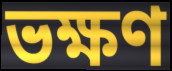
ভক্ষণ